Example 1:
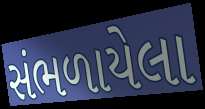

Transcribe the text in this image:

સંભળાયેલા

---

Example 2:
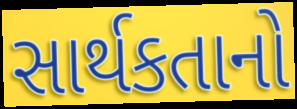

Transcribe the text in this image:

સાર્થકતાનો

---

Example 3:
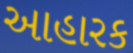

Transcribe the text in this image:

આહારક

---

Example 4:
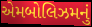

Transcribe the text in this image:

એમબોલિઝમનું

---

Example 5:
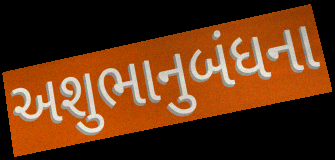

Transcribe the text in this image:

અશુભાનુબંધના